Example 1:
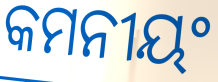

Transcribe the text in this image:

କମନୀୟଂ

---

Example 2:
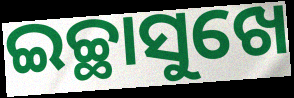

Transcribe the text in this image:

ଇଚ୍ଛାସୁଖେ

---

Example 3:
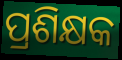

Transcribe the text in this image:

ପ୍ରଶିକ୍ଷକ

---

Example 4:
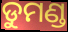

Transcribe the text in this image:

ଡୁମଣ୍ଡ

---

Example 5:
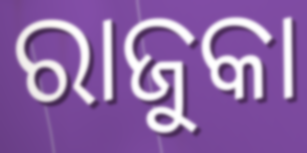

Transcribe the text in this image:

ରାଜୁକା